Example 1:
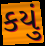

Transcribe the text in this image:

કયું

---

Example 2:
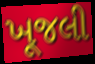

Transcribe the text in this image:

ખૂજલી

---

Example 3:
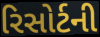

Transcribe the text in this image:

રિસોર્ટની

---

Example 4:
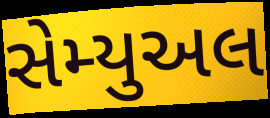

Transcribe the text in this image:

સેમ્યુઅલ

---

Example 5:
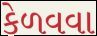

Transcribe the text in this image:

કેળવવા